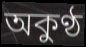
অকুণ্ঠ